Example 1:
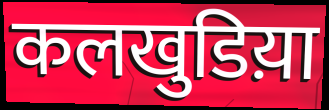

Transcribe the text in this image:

कलखुडिय़ा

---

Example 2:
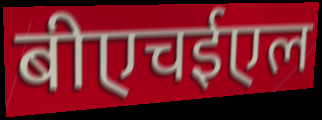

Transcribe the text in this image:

बीएचईएल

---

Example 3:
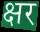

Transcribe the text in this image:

क्षर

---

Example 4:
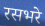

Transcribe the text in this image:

रसभरे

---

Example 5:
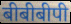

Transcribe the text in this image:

बीबीबीपी